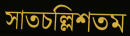
সাতচল্লিশতম